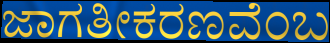
ಜಾಗತೀಕರಣವೆಂಬ